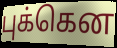
புக்கென